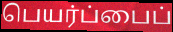
பெயர்ப்பைப்